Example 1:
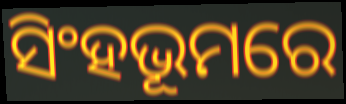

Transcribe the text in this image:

ସିଂହଭୂମରେ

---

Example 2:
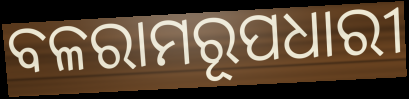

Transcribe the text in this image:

ବଳରାମରୂପଧାରୀ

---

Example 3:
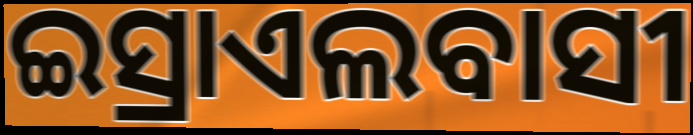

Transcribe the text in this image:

ଇସ୍ରାଏଲବାସୀ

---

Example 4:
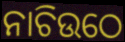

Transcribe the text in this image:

ନାଚିଉଠେ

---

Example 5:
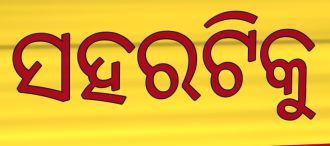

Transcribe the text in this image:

ସହରଟିକୁ